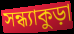
সন্ধ্যাকুড়া